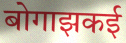
बोगाझकई